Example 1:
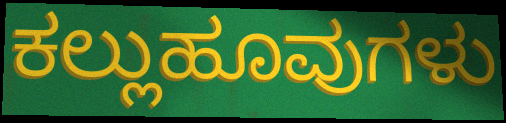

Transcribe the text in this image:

ಕಲ್ಲುಹೂವುಗಳು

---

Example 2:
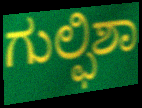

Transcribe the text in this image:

ಗುಲ್ಫಿಶಾ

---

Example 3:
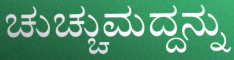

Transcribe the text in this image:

ಚುಚ್ಚುಮದ್ದನ್ನು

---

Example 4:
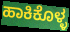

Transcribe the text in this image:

ಹಾಕಿಕೊಳ್ಳ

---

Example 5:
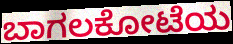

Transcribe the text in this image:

ಬಾಗಲಕೋಟೆಯ